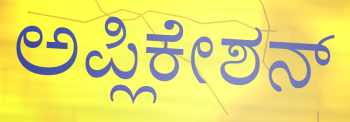
ಅಪ್ಲಿಕೇಶನ್